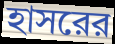
হাসরের